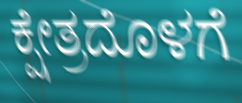
ಕ್ಷೇತ್ರದೊಳಗೆ